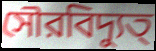
সৌরবিদ্যুত্